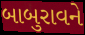
બાબુરાવને